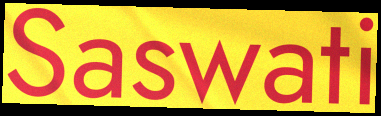
Saswati